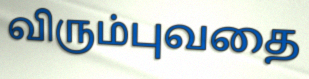
விரும்புவதை